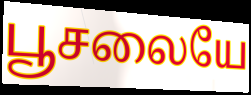
பூசலையே